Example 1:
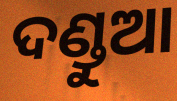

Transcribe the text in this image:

ଦଣ୍ଡୁଆ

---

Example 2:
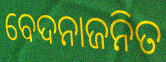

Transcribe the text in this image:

ବେଦନାଜନିତ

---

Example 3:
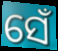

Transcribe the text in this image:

ସେଁ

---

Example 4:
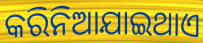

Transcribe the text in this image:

କରିନିଆଯାଇଥାଏ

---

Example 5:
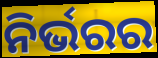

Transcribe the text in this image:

ନିର୍ଭରର